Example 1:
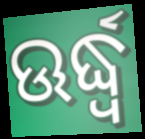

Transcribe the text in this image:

ଊର୍ଦ୍ଧ୍ୱ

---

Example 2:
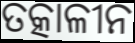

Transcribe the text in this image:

ତତ୍କାଳୀନ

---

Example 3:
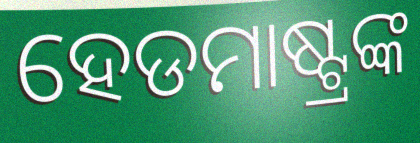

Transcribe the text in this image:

ହେଡମାଷ୍ଟ୍ରଙ୍କ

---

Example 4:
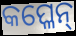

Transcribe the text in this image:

କପ୍ଳେନ୍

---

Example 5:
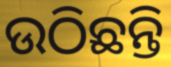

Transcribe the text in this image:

ଉଠିଛନ୍ତି